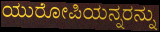
ಯುರೋಪಿಯನ್ನರನ್ನು